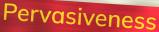
Pervasiveness